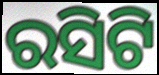
ରସିଟି